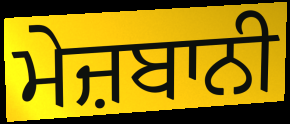
ਮੇਜ਼ਬਾਨੀ